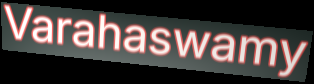
Varahaswamy